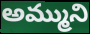
అమ్ముని